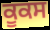
ਕੂਕਸ